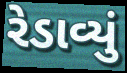
રેડાવ્યું